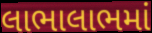
લાભાલાભમાં